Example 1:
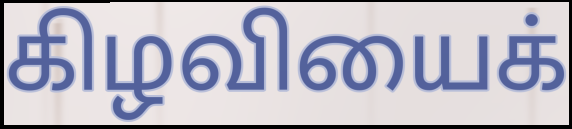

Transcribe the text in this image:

கிழவியைக்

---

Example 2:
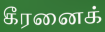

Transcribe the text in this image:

கீரனைக்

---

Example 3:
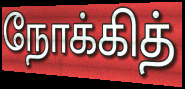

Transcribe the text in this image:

நோக்கித்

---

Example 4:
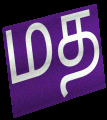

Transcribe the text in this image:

மத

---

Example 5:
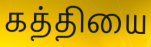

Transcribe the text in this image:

கத்தியை